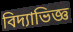
বিদ্যাভিজ্ঞ